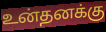
உன்தனக்கு